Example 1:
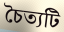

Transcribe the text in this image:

চৈত্যটি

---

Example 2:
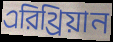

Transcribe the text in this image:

এরিথ্রিয়ান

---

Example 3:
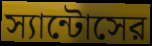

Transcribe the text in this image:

স্যান্টোসের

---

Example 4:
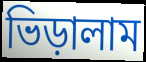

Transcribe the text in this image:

ভিড়ালাম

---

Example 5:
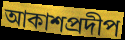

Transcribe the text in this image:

আকাশপ্রদীপ